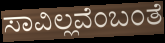
ಸಾವಿಲ್ಲವೆಂಬಂತೆ